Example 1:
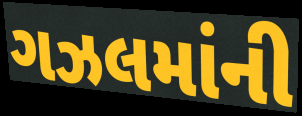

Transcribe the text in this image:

ગઝલમાંની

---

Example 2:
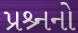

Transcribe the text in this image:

પ્રશ્ર્નનો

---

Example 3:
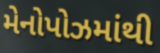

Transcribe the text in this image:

મેનોપોઝમાંથી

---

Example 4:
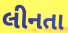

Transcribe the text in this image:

લીનતા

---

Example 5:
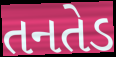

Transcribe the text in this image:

તનતેડ